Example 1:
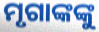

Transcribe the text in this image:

ମୃଗାଙ୍କଙ୍କୁ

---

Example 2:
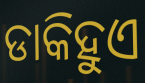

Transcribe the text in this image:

ଡାକିହୁଏ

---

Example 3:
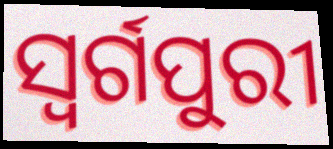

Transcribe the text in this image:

ସ୍ଵର୍ଗପୁରୀ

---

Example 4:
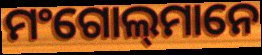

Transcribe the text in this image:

ମଂଗୋଲ୍‍ମାନେ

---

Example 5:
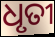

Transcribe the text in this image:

ଧୃତୀ